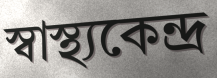
স্বাস্থ্যকেন্দ্র